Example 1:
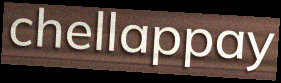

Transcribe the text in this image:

chellappay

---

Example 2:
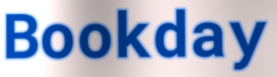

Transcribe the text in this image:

Bookday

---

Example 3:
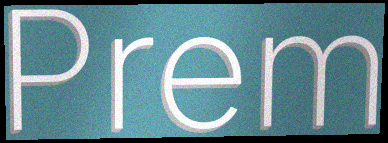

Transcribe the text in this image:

Prem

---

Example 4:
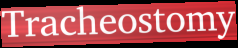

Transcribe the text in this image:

Tracheostomy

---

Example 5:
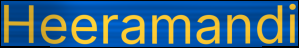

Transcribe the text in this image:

Heeramandi